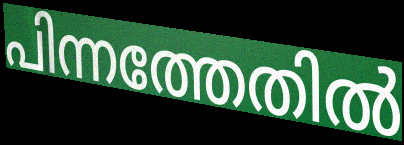
പിന്നത്തേതിൽ